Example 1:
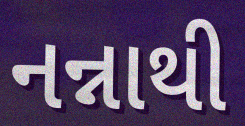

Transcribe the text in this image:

નન્નાથી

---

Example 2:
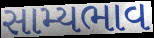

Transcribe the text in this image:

સામ્યભાવ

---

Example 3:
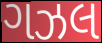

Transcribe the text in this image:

ગઝલ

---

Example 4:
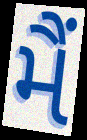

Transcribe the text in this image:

મૈં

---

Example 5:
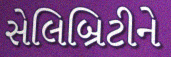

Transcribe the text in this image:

સેલિબ્રિટીને